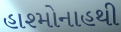
હાશ્મોનાહથી